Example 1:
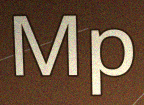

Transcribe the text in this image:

Mp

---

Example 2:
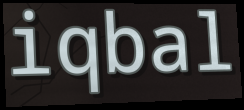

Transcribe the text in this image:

iqbal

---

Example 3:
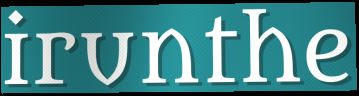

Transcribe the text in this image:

irunthe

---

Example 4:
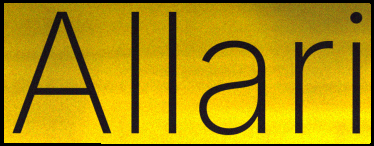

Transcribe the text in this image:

Allari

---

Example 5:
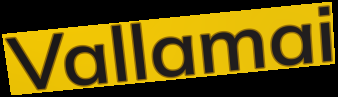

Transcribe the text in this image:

Vallamai